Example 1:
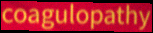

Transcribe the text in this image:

coagulopathy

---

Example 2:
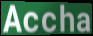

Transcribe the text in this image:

Accha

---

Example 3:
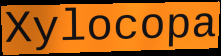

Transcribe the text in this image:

Xylocopa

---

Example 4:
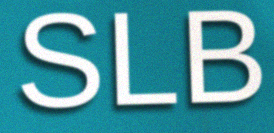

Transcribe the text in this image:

SLB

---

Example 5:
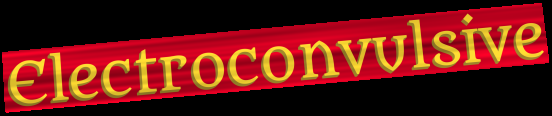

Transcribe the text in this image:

Electroconvulsive